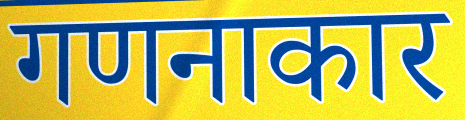
गणनाकार